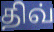
திவ்